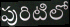
పురిటిలో